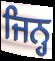
ਜਿਨ੍ਹ